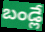
బండ్లే